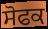
ਸੋਫਕ